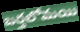
బర్తలోమయి